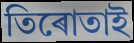
তিৰোতাই